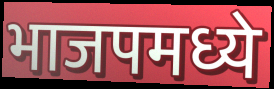
भाजपमध्ये